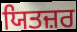
ਯਿਤਜ਼ਰ